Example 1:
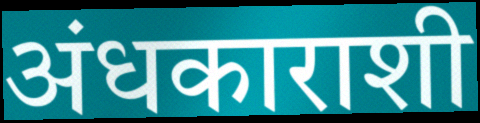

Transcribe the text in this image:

अंधकाराशी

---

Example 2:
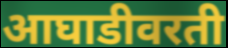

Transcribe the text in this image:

आघाडीवरती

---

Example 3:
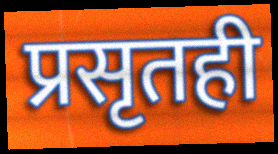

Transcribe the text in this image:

प्रसृतही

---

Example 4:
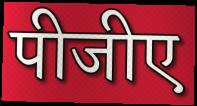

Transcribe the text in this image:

पीजीए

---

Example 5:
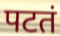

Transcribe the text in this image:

पटतं